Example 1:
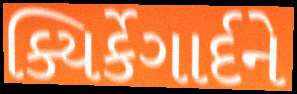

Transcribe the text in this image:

ક્યિર્કેગાર્દને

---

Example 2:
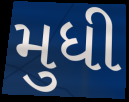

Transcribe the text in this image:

મુધી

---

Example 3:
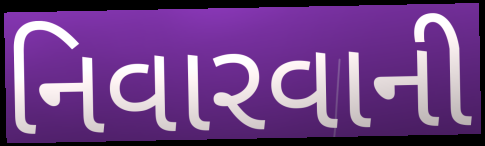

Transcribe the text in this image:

નિવારવાની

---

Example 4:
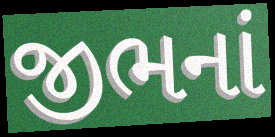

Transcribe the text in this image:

જીભનાં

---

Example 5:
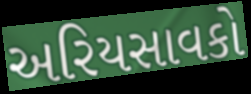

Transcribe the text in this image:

અરિયસાવકો